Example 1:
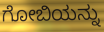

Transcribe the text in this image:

ಗೋಬಿಯನ್ನು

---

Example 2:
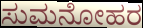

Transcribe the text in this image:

ಸುಮನೋಹರ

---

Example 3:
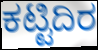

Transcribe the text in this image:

ಕಟ್ಟಿದಿರ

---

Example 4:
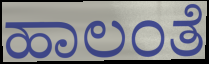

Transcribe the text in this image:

ಹಾಲಂತೆ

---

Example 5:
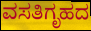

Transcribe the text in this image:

ವಸತಿಗೃಹದ